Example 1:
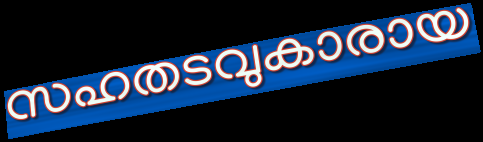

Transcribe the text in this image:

സഹതടവുകാരായ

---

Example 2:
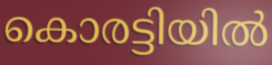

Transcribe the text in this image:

കൊരട്ടിയിൽ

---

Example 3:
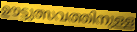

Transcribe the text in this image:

ഊട്ടുത്സവത്തിനുള്ള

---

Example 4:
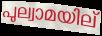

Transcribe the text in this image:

പുല്വാമയില്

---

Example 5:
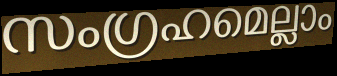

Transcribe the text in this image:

സംഗ്രഹമെല്ലാം